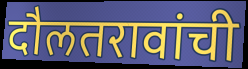
दौलतरावांची